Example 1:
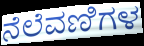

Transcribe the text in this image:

ನೆಲೆವಣಿಗಳ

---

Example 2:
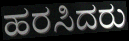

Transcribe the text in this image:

ಹರಸಿದರು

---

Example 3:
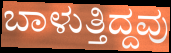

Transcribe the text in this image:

ಬಾಳುತ್ತಿದ್ದವು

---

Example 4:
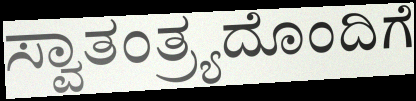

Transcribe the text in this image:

ಸ್ವಾತಂತ್ರ್ಯದೊಂದಿಗೆ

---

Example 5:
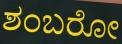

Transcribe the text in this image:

ಶಂಬರೋ